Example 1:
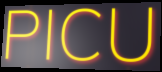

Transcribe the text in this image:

PICU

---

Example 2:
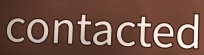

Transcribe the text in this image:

contacted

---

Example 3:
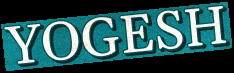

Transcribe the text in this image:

YOGESH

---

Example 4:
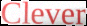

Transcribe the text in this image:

Clever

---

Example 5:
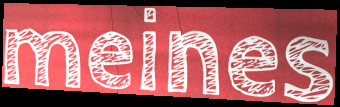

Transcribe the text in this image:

meines